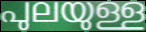
പുലയുള്ള